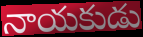
నాయకుడు